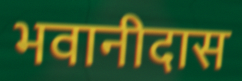
भवानीदास